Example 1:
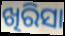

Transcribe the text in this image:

ଖିରିସା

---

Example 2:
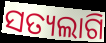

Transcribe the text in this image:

ସତ୍ୟଲାଗି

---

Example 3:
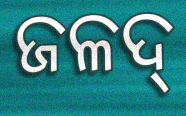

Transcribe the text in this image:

ଜଳଦ୍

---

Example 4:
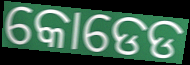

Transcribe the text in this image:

କୋଡେଡ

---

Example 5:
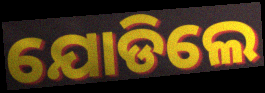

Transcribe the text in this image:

ଯୋଡିଲେ